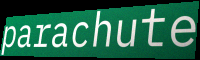
parachute